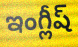
ఇంగ్లీష్